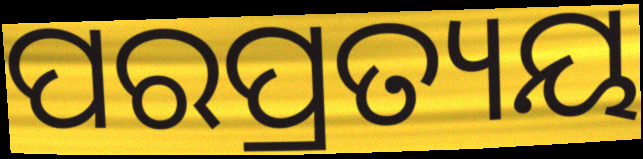
ପରପ୍ରତ୍ୟୟ